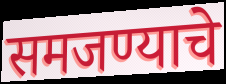
समजण्याचे